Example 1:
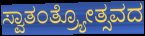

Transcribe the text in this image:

ಸ್ವಾತಂತ್ರ್ಯೋತ್ಸವದ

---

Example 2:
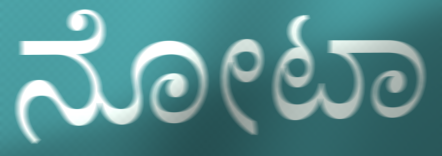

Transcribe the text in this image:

ನೋಟಾ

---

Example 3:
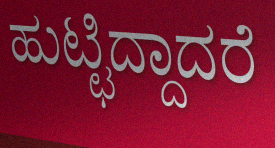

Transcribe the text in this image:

ಹುಟ್ಟಿದ್ದಾದರೆ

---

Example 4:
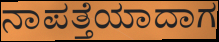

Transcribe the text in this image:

ನಾಪತ್ತೆಯಾದಾಗ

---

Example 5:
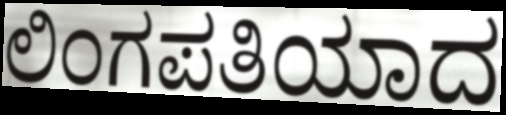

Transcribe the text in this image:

ಲಿಂಗಪತಿಯಾದ